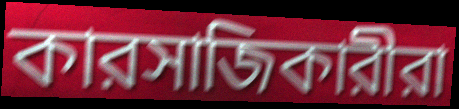
কারসাজিকারীরা